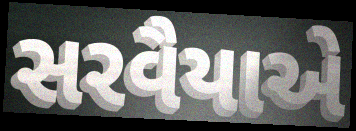
સરવૈયાએ